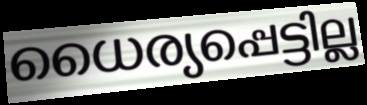
ധൈര്യപ്പെട്ടില്ല